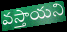
వస్తాయని